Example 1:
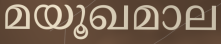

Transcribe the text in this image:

മയൂഖമാല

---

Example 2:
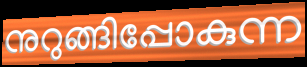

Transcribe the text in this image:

നുറുങ്ങിപ്പോകുന്ന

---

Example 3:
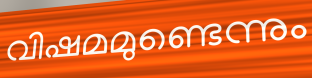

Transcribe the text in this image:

വിഷമമുണ്ടെന്നും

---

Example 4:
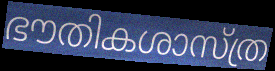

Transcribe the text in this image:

ഭൗതികശാസ്ത്ര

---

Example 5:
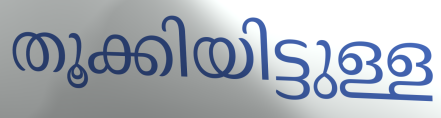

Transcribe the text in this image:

തൂക്കിയിട്ടുള്ള